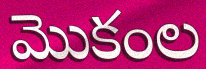
మొకంల